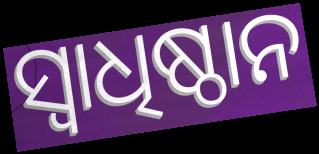
ସ୍ୱାଧିଷ୍ଠାନ